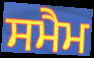
ਸਮੈਮ